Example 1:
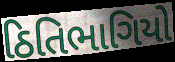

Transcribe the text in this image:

ઠિતિભાગિયો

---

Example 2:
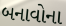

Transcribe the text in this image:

બનાવોના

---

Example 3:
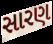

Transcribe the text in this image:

સારણ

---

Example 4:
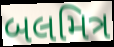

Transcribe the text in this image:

બલમિત્ર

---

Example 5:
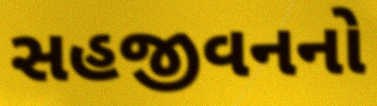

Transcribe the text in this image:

સહજીવનનો